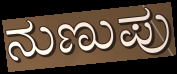
ನುಣುಪು